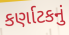
કર્ણાટકનું